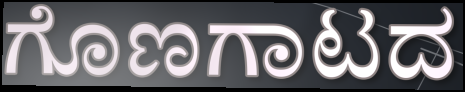
ಗೊಣಗಾಟದ